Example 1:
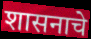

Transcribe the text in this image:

शासनाचे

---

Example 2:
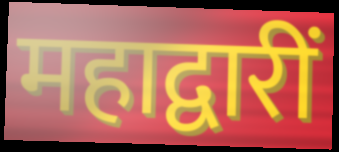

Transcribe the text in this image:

महाद्वारीं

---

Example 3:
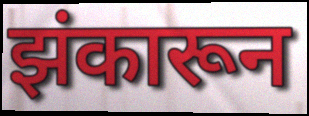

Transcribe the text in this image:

झंकारून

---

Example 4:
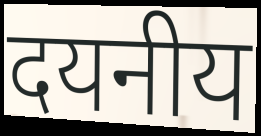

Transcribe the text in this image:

दयनीय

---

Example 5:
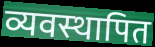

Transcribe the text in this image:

व्यवस्थापित